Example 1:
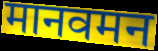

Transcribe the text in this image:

मानवमन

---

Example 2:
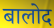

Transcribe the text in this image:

बालोद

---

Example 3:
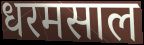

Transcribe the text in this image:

धरमसाल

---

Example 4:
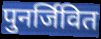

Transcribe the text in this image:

पुनर्जिवित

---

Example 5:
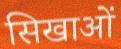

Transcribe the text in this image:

सिखाओं